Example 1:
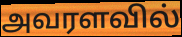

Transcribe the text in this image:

அவரளவில்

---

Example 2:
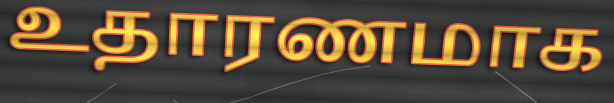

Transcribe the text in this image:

உதாரணமாக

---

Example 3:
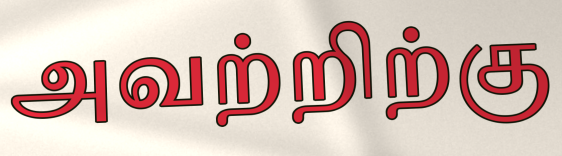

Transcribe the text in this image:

அவற்றிற்கு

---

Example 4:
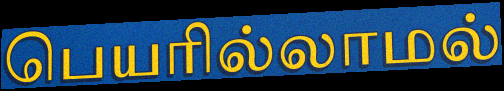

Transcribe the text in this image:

பெயரில்லாமல்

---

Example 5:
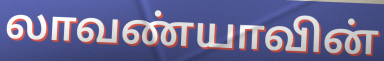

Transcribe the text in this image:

லாவண்யாவின்